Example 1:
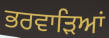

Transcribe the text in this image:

ਭਰਵਾੜਿਆਂ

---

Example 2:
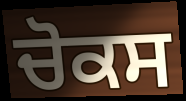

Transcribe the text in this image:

ਚੋਕਸ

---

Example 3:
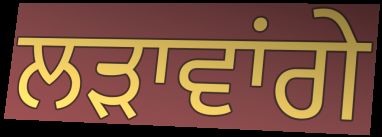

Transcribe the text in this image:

ਲੜਾਵਾਂਗੇ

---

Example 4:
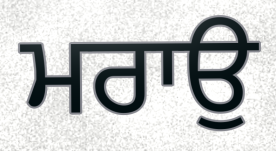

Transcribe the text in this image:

ਮਰਾਉ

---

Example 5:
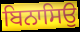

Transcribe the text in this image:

ਬਿਨਾਸਿਉ